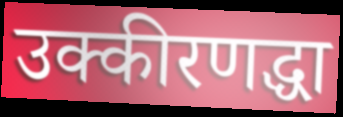
उक्कीरणद्धा